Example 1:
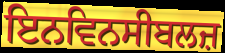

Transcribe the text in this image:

ਇਨਵਿਨਸੀਬਲਜ਼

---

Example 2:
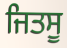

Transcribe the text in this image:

ਜਿਤਸੂ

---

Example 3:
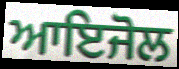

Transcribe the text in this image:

ਆਇਜੋਲ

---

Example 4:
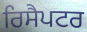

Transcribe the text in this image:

ਰਿਸੈਪਟਰ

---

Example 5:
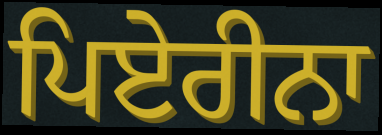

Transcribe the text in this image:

ਪਿਏਰੀਨਾ